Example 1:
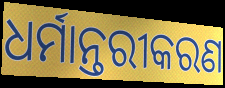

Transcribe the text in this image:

ଧର୍ମାନ୍ତରୀକରଣ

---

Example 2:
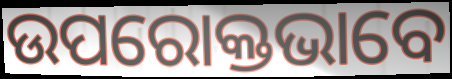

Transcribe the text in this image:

ଉପରୋକ୍ତଭାବେ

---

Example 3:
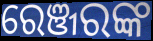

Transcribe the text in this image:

ରେଞ୍ଜରଙ୍କ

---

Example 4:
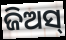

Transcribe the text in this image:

ଜିଅସ୍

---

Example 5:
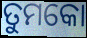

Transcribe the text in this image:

ତୁମକୋ